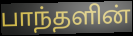
பாந்தளின்